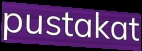
pustakat